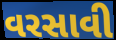
વરસાવી